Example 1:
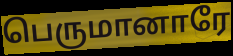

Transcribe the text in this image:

பெருமானாரே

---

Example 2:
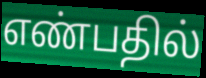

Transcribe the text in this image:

எண்பதில்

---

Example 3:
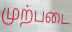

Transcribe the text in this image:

முற்படை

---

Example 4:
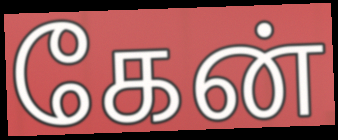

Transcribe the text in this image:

கேன்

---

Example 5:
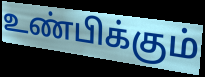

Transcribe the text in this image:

உண்பிக்கும்